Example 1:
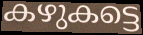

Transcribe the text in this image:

കഴുകട്ടെ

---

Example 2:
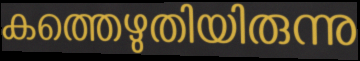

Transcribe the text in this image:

കത്തെഴുതിയിരുന്നു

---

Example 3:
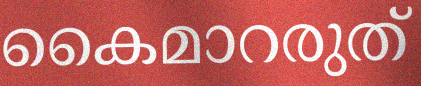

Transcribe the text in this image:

കൈമാറരുത്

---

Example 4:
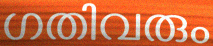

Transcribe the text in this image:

ഗതിവരും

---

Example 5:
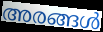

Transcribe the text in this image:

അരങ്ങൾ